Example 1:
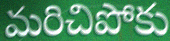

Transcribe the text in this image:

మరిచిపోకు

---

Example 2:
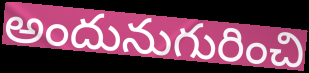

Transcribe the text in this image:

అందునుగురించి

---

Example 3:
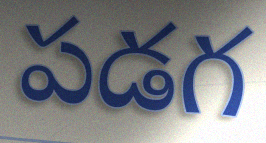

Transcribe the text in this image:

పడగ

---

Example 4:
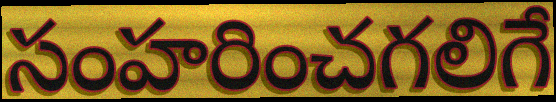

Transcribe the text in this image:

సంహరించగలిగే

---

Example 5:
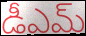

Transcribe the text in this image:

డీఎమ్